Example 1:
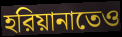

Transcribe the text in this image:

হরিয়ানাতেও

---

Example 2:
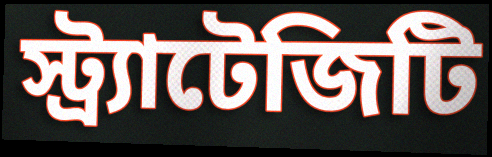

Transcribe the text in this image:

স্ট্র্যাটেজিটি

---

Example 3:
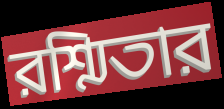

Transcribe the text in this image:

রশ্মিতার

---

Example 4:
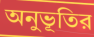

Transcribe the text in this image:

অনুভূতির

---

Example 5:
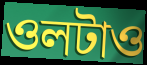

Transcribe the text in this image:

ওলটাও